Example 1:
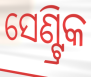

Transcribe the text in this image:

ସେଣ୍ଟ୍ରିକ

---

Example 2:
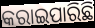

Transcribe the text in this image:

କରାଇପାରିଛି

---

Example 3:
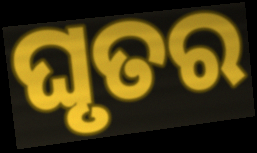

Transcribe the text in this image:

ଘୃତର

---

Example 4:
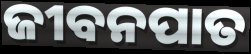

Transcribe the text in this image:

ଜୀବନପାତ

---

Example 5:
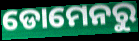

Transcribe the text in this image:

ଡୋମେନରୁ